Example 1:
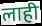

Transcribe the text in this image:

लाही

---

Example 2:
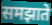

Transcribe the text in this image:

समझाते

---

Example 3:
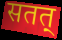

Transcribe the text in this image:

सतत्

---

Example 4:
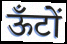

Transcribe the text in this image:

ऊँटों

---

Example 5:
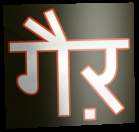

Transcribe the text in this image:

गैऱ